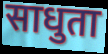
साधुता